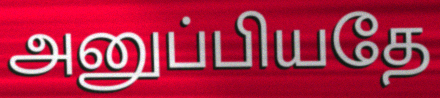
அனுப்பியதே